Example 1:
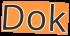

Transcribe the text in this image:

Dok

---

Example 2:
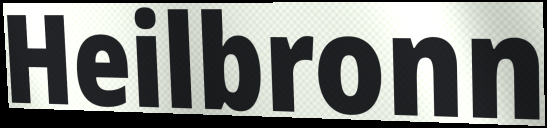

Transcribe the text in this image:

Heilbronn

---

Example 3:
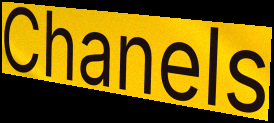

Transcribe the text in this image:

Chanels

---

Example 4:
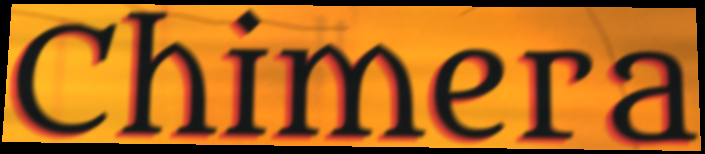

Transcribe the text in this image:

Chimera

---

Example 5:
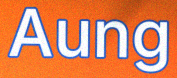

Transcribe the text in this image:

Aung